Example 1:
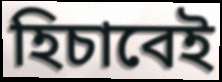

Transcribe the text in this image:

হিচাবেই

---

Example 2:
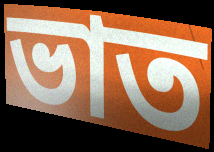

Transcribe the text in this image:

ভাত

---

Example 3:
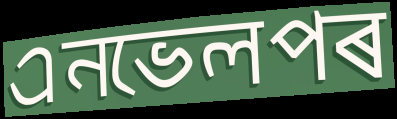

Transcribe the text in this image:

এনভেলপৰ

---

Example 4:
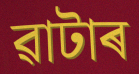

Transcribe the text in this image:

ৱাটাৰ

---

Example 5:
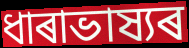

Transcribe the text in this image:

ধাৰাভাষ্যৰ